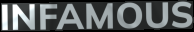
INFAMOUS